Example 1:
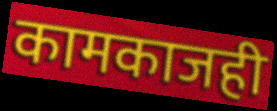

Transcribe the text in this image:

कामकाजही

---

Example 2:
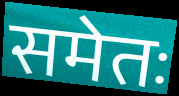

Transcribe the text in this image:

समेतः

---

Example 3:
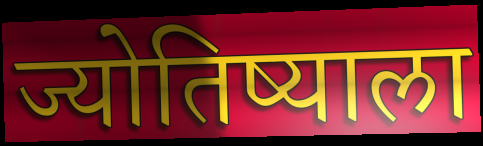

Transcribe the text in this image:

ज्योतिष्याला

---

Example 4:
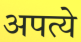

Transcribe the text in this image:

अपत्ये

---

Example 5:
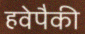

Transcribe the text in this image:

हवेपैकी